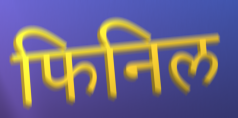
फिनिल